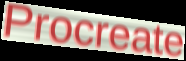
Procreate